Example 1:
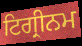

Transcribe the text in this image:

ਟਿਗ੍ਰੀਨਮ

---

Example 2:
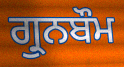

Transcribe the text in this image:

ਗ੍ਰੁਨਬੌਮ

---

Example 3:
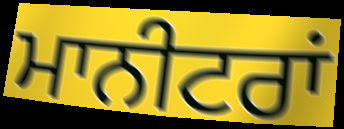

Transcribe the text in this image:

ਮਾਨੀਟਰਾਂ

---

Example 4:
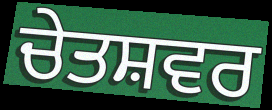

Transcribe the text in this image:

ਚੇਤਸ਼ਵਰ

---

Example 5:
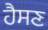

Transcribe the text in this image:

ਹੈਸਣ